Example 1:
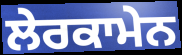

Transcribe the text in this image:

ਲੇਰਕਾਮੇਨ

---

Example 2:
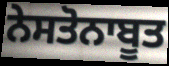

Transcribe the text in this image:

ਨੇਸਤੋਨਾਬੂਤ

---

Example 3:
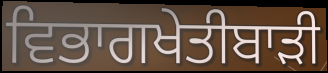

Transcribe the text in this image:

ਵਿਭਾਗਖੇਤੀਬਾੜੀ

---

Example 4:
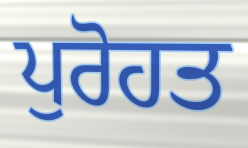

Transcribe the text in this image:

ਪੁਰੋਹਤ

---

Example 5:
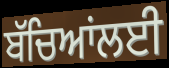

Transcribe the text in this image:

ਬੱਚਿਆਂਲਈ